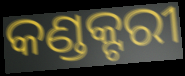
କଣ୍ଡକ୍ଟରୀ